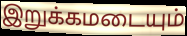
இறுக்கமடையும்